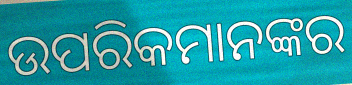
ଉପରିକମାନଙ୍କର